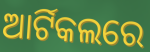
ଆର୍ଟିକଲରେ